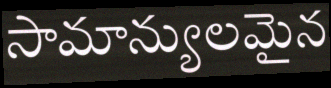
సామాన్యులమైన